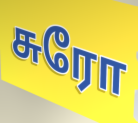
சுரோ